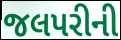
જલપરીની